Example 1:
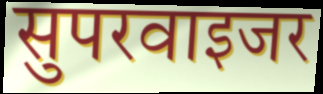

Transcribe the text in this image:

सुपरवाइजर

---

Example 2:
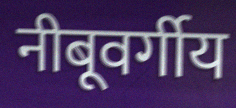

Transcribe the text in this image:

नीबूवर्गीय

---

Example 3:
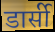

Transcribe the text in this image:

डार्सी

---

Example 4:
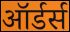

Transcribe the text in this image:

ऑर्डर्स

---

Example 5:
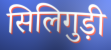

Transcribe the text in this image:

सिलिगुड़ी